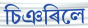
চিঞৰিলে